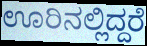
ಊರಿನಲ್ಲಿದ್ದರೆ